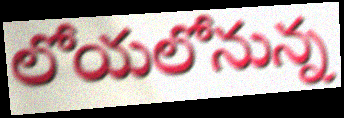
లోయలోనున్న